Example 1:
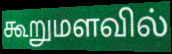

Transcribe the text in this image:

கூறுமளவில்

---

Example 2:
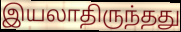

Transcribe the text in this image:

இயலாதிருந்தது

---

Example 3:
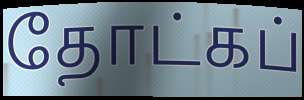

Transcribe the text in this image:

தோட்கப்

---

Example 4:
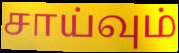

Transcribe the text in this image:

சாய்வும்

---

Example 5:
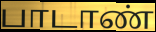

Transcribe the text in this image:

பாடாண்